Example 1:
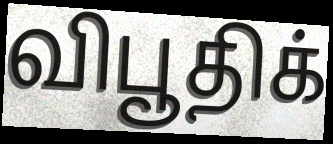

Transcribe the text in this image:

விபூதிக்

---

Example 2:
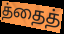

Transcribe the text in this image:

த்தைத்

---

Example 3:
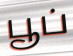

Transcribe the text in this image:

பூப்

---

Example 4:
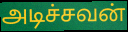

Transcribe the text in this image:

அடிச்சவன்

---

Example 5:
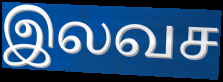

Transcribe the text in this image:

இலவச